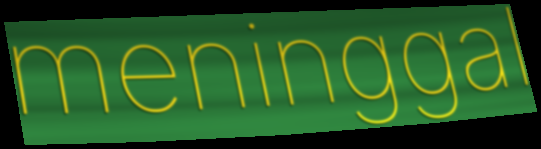
meninggal